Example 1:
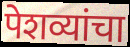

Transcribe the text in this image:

पेशव्यांचा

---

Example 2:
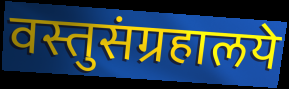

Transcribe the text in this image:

वस्तुसंग्रहालये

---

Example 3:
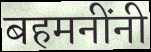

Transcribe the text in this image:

बहमनींनी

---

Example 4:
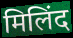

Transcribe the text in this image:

मिलिंद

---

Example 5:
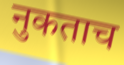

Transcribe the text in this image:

नुकताच